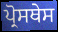
ਪ੍ਰੋਸਥੇਸ